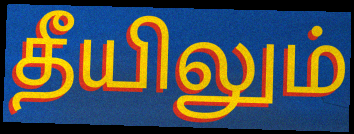
தீயிலும்